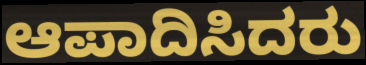
ಆಪಾದಿಸಿದರು